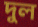
দুল